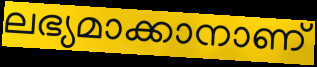
ലഭ്യമാക്കാനാണ്